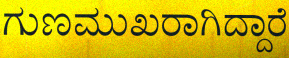
ಗುಣಮುಖರಾಗಿದ್ದಾರೆ